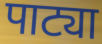
पाट्या